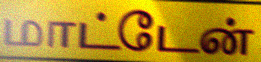
மாட்டேன்